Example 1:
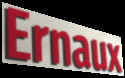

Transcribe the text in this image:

Ernaux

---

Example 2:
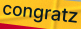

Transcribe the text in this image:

congratz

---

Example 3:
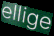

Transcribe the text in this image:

ellige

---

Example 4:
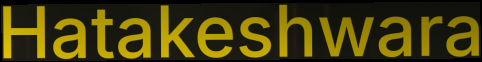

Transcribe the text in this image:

Hatakeshwara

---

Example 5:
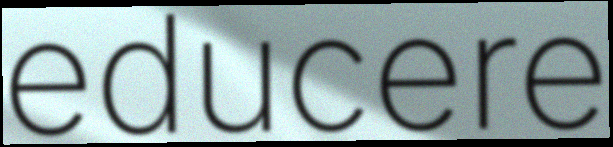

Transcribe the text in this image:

educere